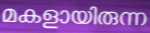
മകളായിരുന്ന